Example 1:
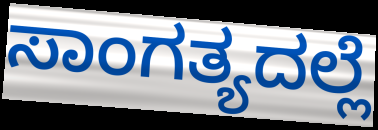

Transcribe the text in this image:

ಸಾಂಗತ್ಯದಲ್ಲೆ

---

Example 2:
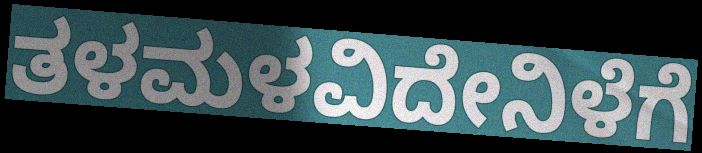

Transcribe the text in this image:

ತಳಮಳವಿದೇನಿಳೆಗೆ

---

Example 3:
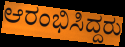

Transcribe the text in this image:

ಆರಂಭಿಸಿದ್ದರು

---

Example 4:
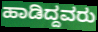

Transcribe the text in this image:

ಹಾಡಿದ್ದವರು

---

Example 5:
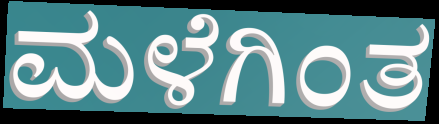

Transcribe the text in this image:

ಮಳೆಗಿಂತ